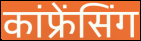
कांफ्रेंसिंग